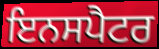
ਇਨਸਪੈਟਰ